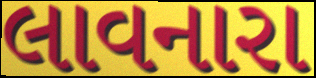
લાવનારા